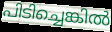
പിടിച്ചെങ്കിൽ